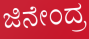
ಜಿನೇಂದ್ರ